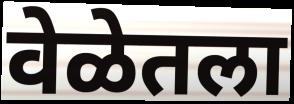
वेळेतला